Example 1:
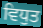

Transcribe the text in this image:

ਵਿਧੁਤ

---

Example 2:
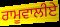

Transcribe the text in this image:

ਰਾਮੂਵਾਲੀਏ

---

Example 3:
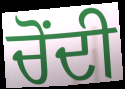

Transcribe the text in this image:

ਚੋੰਦੀ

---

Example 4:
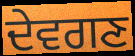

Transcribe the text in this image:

ਦੇਵਗਣ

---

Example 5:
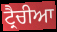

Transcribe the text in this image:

ਟ੍ਰੈਚੀਆ